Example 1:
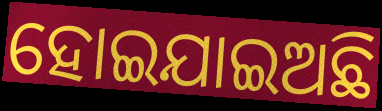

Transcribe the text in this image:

ହୋଇଯାଇଅଛି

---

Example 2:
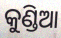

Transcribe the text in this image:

କୁଣ୍ଡିଆ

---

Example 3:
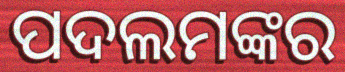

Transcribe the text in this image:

ପଦଲମଙ୍କର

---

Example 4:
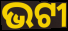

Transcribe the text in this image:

ଭଟୀ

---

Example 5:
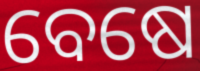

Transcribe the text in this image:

ବେଷେ